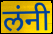
लंनी